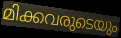
മിക്കവരുടെയും